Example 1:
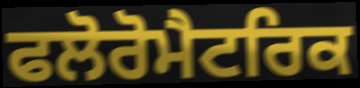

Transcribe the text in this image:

ਫਲੋਰੋਮੈਟਰਿਕ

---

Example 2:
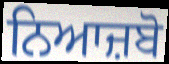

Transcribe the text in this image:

ਨਿਆਜ਼ਬੋ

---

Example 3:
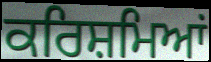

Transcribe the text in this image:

ਕਰਿਸ਼ਮਿਆਂ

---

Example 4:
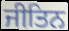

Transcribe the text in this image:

ਜੀਤਿਨ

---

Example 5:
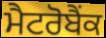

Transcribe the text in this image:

ਮੈਟਰੋਬੈਂਕ